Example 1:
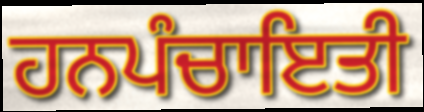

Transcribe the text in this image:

ਹਨਪੰਚਾਇਤੀ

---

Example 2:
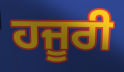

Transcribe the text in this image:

ਹਜੂਰੀ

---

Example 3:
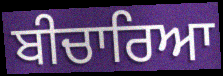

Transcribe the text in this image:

ਬੀਚਾਰਿਆ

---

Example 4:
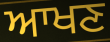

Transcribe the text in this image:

ਆਖਣ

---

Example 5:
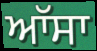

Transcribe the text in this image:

ਆੱਸਾ